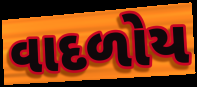
વાદળોય